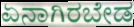
ಏನಾಗಿರಬೇಡ